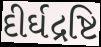
દીર્ઘદ્રષ્ટિ